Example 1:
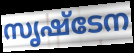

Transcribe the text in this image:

സൃഷ്ടേന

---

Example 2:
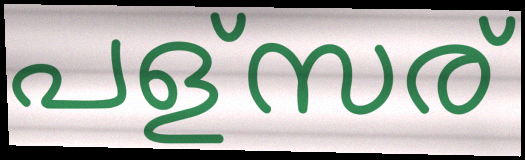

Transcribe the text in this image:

പള്സര്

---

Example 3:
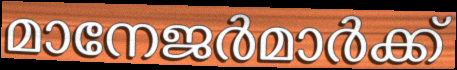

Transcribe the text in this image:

മാനേജർമാർക്ക്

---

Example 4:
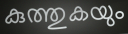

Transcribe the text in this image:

കുത്തുകയും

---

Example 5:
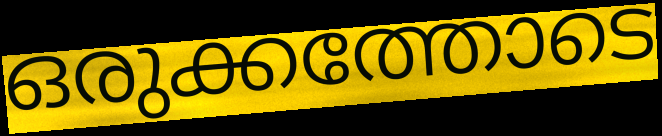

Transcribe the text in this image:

ഒരുക്കത്തോടെ